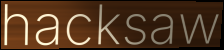
hacksaw